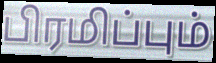
பிரமிப்பும்